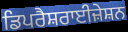
ਡਿਪਰੈਸ਼ਰਾਈਜ਼ੇਸ਼ਨ